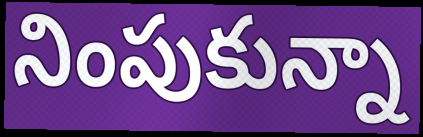
నింపుకున్నా